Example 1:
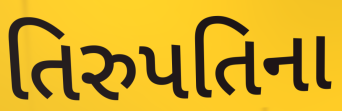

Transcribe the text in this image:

તિરુપતિના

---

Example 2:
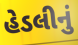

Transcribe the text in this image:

હેડલીનું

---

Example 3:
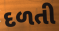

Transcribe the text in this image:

દળતી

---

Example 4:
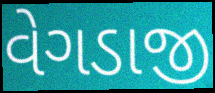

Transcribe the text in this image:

વેગડાજી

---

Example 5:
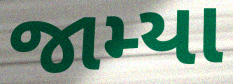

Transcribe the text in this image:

જામ્યા